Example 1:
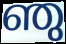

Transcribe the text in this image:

ഞു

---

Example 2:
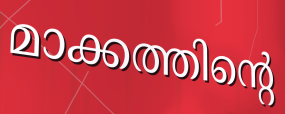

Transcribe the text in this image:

മാക്കത്തിന്റെ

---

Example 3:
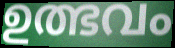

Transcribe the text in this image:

ഉത്ഭവം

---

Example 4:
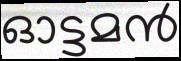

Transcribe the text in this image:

ഓട്ടമൻ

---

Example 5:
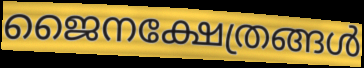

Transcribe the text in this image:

ജൈനക്ഷേത്രങ്ങൾ